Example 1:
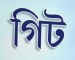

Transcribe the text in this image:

গিট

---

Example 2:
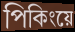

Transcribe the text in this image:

পিকিংয়ে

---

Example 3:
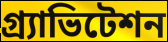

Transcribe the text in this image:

গ্র্যাভিটেশন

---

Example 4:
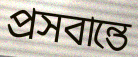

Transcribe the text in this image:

প্রসবান্তে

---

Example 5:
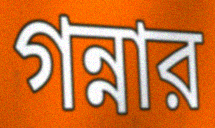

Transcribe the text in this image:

গন্নার